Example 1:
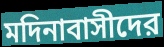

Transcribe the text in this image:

মদিনাবাসীদের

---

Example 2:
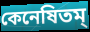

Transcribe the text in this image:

কেনেষিতম্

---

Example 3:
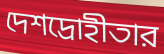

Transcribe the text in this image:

দেশদ্রোহীতার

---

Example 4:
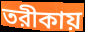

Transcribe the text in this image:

তরীকায়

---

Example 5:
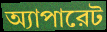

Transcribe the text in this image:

অ্যাপারেট